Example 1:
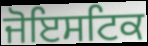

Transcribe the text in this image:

ਜੋਇਸਟਿਕ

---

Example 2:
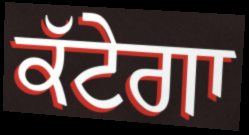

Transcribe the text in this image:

ਕੱਟੇਗਾ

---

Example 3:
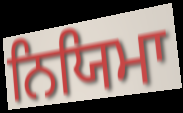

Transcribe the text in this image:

ਨਿਯਿਮਾ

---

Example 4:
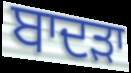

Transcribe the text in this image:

ਬਾਦੜਾ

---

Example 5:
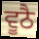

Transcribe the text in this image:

ਵੂਠੈ